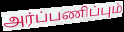
அர்ப்பணிப்பும்